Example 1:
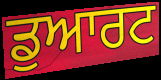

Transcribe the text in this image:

ਡੁਆਰਟ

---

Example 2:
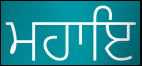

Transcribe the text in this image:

ਮਹਾਇ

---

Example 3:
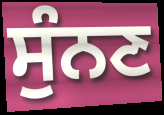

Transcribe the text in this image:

ਸੁੰਨਣ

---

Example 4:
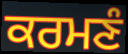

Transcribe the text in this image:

ਕਰਮਣੰ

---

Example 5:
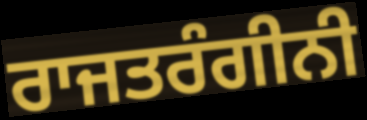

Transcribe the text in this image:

ਰਾਜਤਰੰਗੀਨੀ